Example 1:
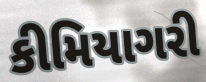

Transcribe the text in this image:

કીમિયાગરી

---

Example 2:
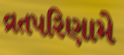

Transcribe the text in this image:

વ્રતપરિણામે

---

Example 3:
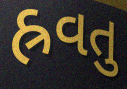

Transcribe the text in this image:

હ્રવતુ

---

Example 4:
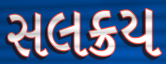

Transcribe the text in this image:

સલક્રય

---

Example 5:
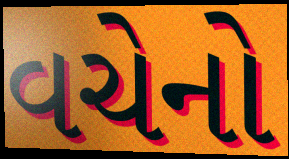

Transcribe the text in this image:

વચેનો